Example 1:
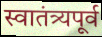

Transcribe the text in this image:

स्वातंत्र्यपूर्व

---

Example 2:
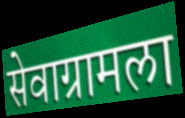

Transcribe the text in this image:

सेवाग्रामला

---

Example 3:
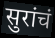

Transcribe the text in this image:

सुरांचं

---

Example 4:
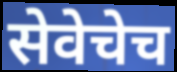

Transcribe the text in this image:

सेवेचेच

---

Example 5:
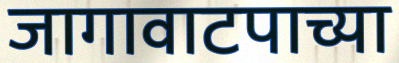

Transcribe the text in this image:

जागावाटपाच्या